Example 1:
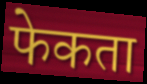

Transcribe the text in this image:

फेकता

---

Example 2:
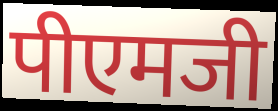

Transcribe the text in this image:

पीएमजी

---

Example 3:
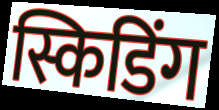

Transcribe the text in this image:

स्किडिंग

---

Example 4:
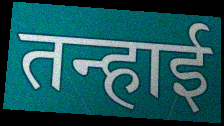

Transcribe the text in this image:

तन्हाई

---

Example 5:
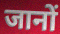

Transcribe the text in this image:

जानों